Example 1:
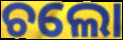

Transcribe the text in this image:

ଚଲୋ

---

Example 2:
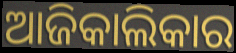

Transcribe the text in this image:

ଆଜିକାଲିକାର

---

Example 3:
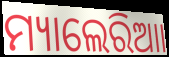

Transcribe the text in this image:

ମ୍ୟାଲେରିଆା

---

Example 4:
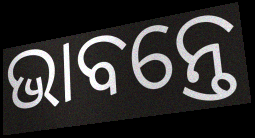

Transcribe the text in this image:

ଭାବନ୍ତେ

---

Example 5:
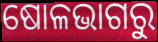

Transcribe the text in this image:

ଷୋଳଭାଗରୁ